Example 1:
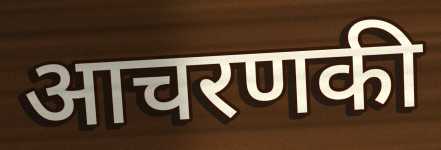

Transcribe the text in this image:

आचरणकी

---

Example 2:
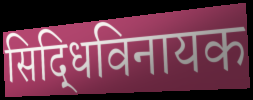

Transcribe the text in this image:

सिद्धिविनायक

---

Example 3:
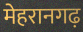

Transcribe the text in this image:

मेहरानगढ़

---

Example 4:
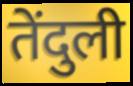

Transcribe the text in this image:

तेंदुली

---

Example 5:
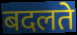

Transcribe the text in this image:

बदलते